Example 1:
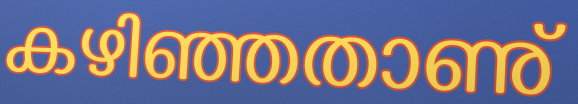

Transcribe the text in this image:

കഴിഞ്ഞതാണു്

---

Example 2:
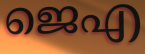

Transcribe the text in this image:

ജെഎ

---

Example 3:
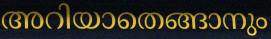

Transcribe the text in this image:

അറിയാതെങ്ങാനും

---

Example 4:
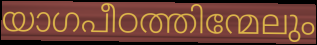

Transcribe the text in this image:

യാഗപീഠത്തിന്മേലും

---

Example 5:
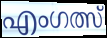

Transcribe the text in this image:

എംഗത്സ്